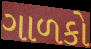
ગાળકો